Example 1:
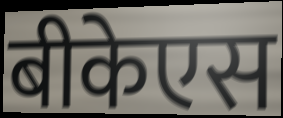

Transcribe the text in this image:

बीकेएस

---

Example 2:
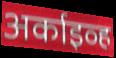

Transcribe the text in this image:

अर्काइव्ह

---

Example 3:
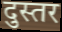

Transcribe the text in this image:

दुस्तर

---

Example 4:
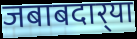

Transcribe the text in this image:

जबाबदार्‍या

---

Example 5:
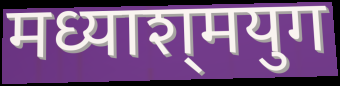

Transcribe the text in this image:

मध्याश्मयुग